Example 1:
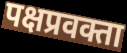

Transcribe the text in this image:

पक्षप्रवक्ता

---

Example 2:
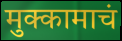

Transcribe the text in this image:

मुक्कामाचं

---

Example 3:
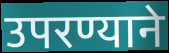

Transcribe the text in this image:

उपरण्याने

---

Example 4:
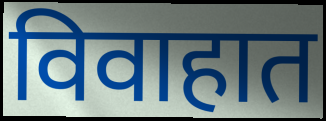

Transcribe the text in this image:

विवाहात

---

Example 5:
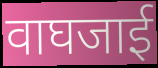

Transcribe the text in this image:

वाघजाई